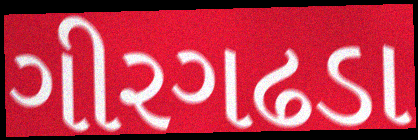
ગીરગઢડા